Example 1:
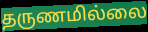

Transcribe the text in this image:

தருணமில்லை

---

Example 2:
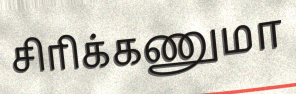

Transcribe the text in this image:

சிரிக்கணுமா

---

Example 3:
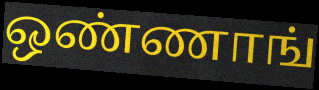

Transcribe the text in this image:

ஒண்ணாங்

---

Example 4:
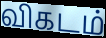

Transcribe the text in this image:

விகடம்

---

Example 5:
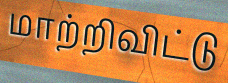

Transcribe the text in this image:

மாற்றிவிட்டு